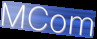
MCom